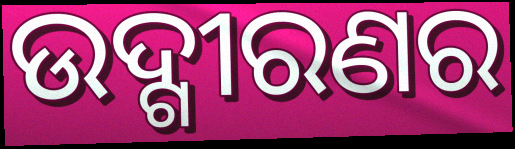
ଉଦ୍ଗୀରଣର